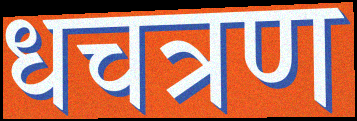
धचत्रण